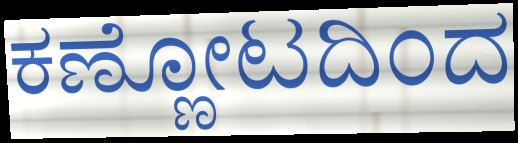
ಕಣ್ಣೋಟದಿಂದ